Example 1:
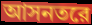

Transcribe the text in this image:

আসনতরে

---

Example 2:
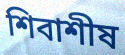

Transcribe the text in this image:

শিবাশীষ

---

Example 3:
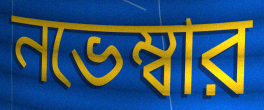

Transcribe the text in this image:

নভেম্বার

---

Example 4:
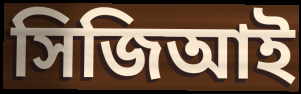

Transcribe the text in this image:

সিজিআই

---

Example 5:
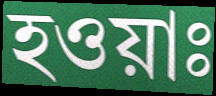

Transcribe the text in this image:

হওয়াঃ